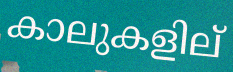
കാലുകളില്